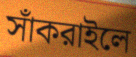
সাঁকরাইলে